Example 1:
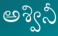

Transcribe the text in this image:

అశ్వినీ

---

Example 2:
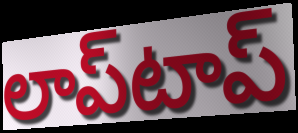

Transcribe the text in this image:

లాప్‌టాప్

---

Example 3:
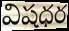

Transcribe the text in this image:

విషధర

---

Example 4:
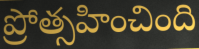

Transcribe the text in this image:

ప్రోత్సహించింది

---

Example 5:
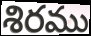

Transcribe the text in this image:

శిరము